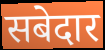
सबेदार